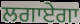
ਲਗਾਏਗਾ